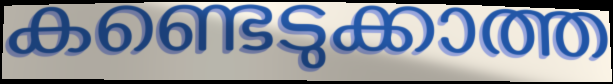
കണ്ടെടുക്കാത്ത